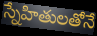
స్నేహితులతోనే